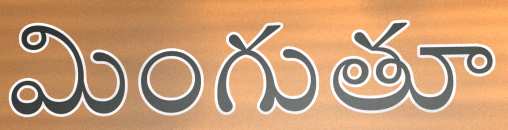
మింగుతూ